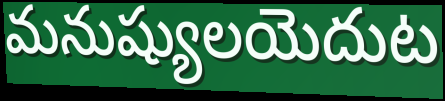
మనుష్యులయెదుట